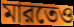
মারতেও